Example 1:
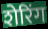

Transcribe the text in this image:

शेरिंग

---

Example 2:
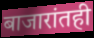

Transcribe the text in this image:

बाजारांतही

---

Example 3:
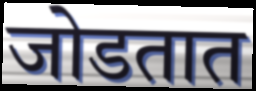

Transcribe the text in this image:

जोडतात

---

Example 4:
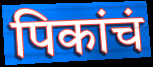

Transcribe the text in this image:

पिकांचं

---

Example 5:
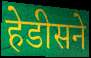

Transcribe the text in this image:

हेडीसने